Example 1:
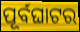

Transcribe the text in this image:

ପୂର୍ବଘାଟର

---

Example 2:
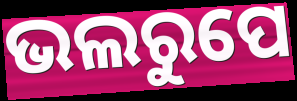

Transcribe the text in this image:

ଭଲରୁପେ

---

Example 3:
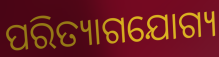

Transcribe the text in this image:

ପରିତ୍ୟାଗଯୋଗ୍ୟ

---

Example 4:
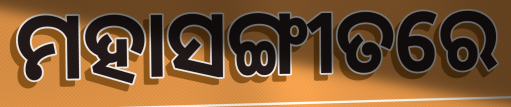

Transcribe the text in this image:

ମହାସଙ୍ଗୀତରେ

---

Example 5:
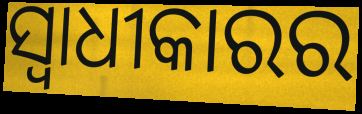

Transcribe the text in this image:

ସ୍ୱାଧୀକାରର